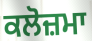
ਕਲੋਜ਼ਮਾ